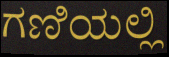
ಗಣಿಯಲ್ಲಿ